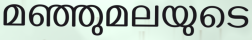
മഞ്ഞുമലയുടെ